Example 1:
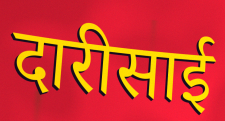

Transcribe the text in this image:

दारीसाई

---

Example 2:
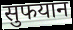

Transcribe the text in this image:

सुफयान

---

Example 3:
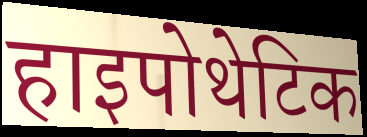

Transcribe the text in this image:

हाइपोथेटिक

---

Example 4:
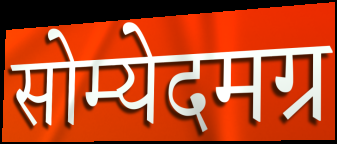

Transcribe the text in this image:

सोम्येदमग्र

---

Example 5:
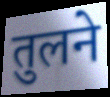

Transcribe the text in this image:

तुलने